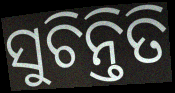
ସୁଚିନ୍ତିତି